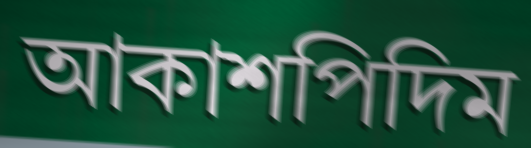
আকাশপিদিম